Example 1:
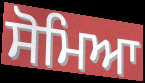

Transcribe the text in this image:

ਸੋਮਿਆ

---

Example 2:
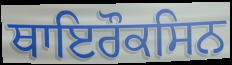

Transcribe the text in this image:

ਥਾਇਰੌਕਸਿਨ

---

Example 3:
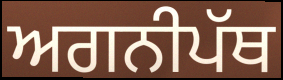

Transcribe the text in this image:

ਅਗਨੀਪੱਥ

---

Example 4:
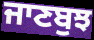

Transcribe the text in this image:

ਜਾਣਬੁਝ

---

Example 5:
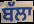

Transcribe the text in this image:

ਬੱਲਾ